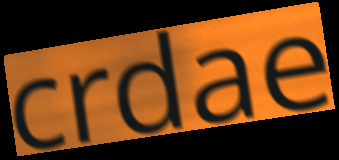
crdae